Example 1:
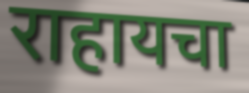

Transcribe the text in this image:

राहायचा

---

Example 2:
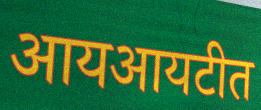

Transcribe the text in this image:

आयआयटीत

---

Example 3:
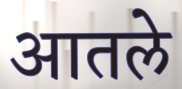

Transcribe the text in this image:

आतले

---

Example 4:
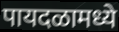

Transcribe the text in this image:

पायदळामध्ये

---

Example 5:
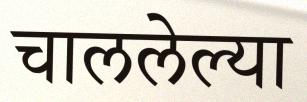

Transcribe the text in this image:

चाललेल्या